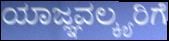
ಯಾಜ್ಞವಲ್ಕ್ಯರಿಗೆ